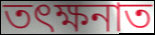
তৎক্ষনাত